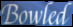
Bowled